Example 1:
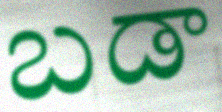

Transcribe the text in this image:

బడా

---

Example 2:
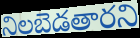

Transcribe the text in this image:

నిలబెడతారని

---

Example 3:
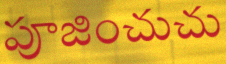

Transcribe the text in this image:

పూజించుచు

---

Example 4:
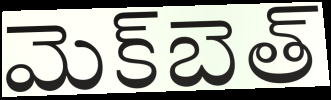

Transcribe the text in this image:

మెక్‌బెత్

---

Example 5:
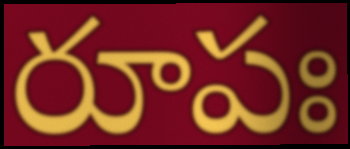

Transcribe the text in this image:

రూపః